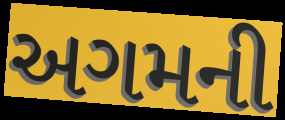
અગમની